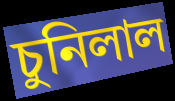
চুনিলাল